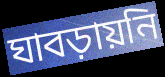
ঘাবড়ায়নি